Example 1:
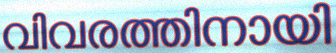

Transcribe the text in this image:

വിവരത്തിനായി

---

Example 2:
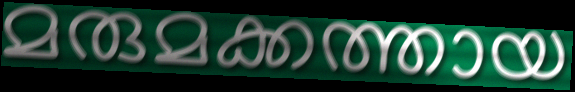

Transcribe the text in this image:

മരുമക്കത്തായ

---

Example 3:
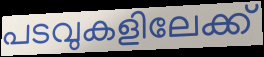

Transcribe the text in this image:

പടവുകളിലേക്ക്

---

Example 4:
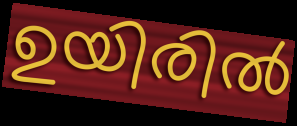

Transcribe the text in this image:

ഉയിരിൽ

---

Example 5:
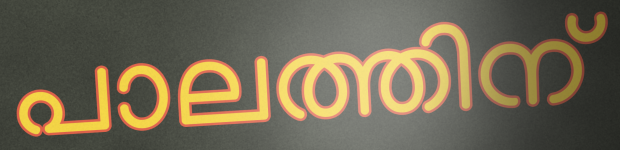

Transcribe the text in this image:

പാലത്തിന്